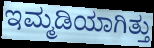
ಇಮ್ಮಡಿಯಾಗಿತ್ತು